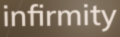
infirmity